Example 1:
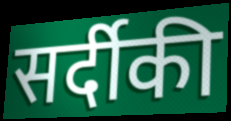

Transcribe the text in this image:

सर्दीकी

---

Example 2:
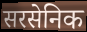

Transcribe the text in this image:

सरसेनिक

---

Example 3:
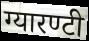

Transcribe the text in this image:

ग्यारण्टी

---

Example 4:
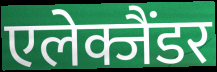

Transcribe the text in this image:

एलेक्जैंडर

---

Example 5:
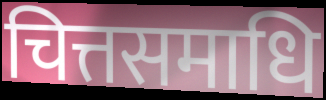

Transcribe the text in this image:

चित्तसमाधि